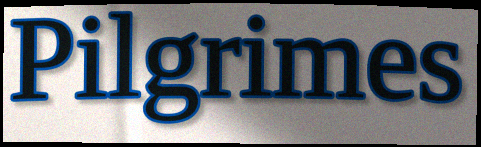
Pilgrimes